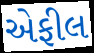
એફીલ